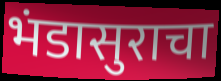
भंडासुराचा